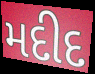
મદીદ